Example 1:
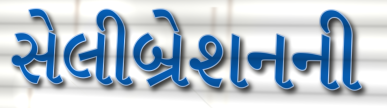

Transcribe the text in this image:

સેલીબ્રેશનની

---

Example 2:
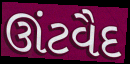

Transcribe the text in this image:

ઊંટવૈદ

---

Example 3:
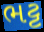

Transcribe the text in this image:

ભટ્ટ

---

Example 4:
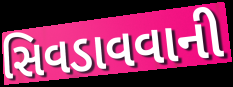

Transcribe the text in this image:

સિવડાવવાની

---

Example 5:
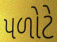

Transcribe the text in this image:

પળોટે